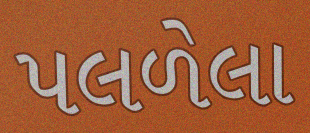
પલળેલા